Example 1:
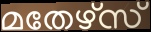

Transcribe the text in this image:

മതേഴ്സ്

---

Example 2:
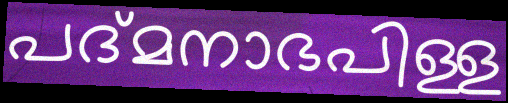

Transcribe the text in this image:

പദ്മനാഭപിള്ള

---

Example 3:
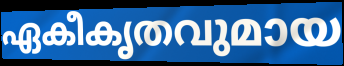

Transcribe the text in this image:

ഏകീകൃതവുമായ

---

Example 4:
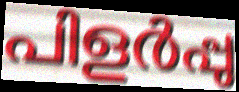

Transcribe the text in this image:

പിളർപ്പു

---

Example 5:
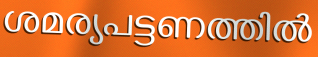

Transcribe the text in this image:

ശമര്യപട്ടണത്തിൽ